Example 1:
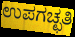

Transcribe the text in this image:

ಉಪಗಚ್ಛತಿ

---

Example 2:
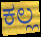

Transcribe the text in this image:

ಕಲ್ಲ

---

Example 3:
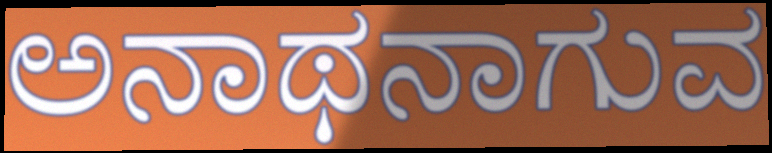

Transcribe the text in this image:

ಅನಾಥನಾಗುವ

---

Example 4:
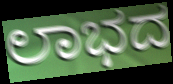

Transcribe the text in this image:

ಲಾಭದ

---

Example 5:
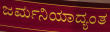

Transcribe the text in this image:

ಜರ್ಮನಿಯಾದ್ಯಂತ